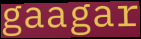
gaagar